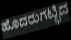
ಹೊದರುಗಟ್ಟಿದ